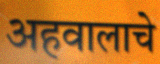
अहवालाचे